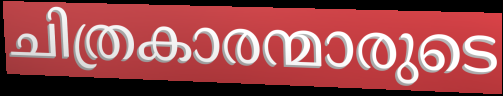
ചിത്രകാരന്മാരുടെ